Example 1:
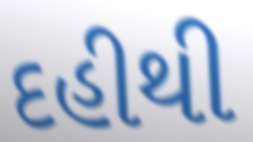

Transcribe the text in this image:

દહીથી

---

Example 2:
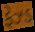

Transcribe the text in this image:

ફેઝ્ડ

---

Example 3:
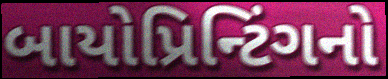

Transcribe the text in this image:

બાયોપ્રિન્ટિંગનો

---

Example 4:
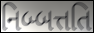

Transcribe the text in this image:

નિબ્બત્તતિ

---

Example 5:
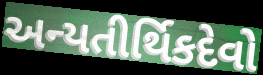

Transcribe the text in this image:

અન્યતીર્થિકદેવો